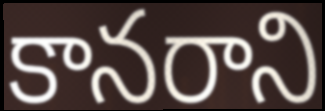
కానరాని